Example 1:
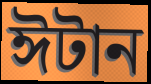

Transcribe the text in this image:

ঈটান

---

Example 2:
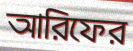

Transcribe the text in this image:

আরিফের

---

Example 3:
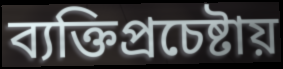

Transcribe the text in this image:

ব্যক্তিপ্রচেষ্টায়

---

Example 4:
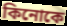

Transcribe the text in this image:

কিনোকে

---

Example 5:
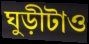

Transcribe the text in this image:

ঘুড়ীটাও